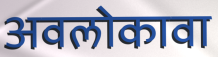
अवलोकावा